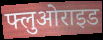
फ्लुओराइड